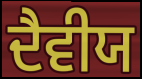
ਦੈਵੀਯ